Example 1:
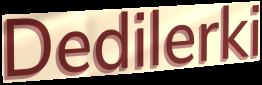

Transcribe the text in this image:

Dedilerki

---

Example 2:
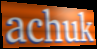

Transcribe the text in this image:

achuk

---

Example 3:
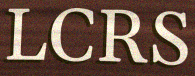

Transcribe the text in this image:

LCRS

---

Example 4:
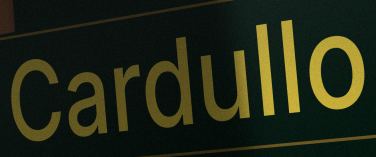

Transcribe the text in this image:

Cardullo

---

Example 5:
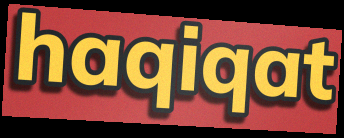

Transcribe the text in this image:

haqiqat